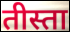
तीस्ता